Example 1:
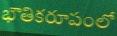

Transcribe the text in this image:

భౌతికరూపంలో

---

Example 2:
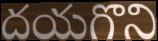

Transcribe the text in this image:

దయగొని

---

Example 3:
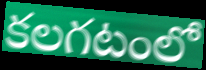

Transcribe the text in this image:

కలగటంలో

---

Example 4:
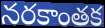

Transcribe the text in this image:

నరకాంతక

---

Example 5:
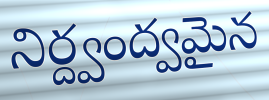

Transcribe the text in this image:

నిర్ద్వంద్వమైన